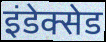
इंडेक्सेड